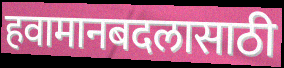
हवामानबदलासाठी